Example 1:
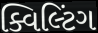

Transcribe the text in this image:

ક્વિલ્ટિંગ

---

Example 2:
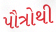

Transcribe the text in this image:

પૌત્રોથી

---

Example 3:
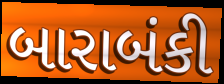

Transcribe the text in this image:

બારાબંકી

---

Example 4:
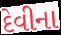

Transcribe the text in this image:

દેવીના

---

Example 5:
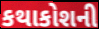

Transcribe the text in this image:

કથાકોશની